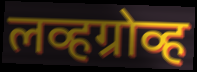
लव्हग्रोव्ह